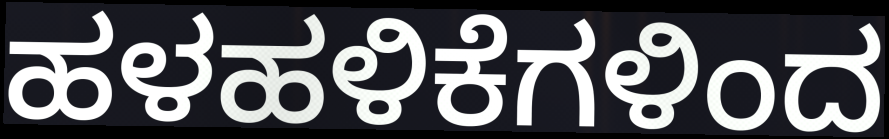
ಹಳಹಳಿಕೆಗಳಿಂದ